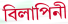
বিলাপিনী